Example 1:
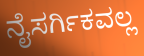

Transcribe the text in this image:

ನೈಸರ್ಗಿಕವಲ್ಲ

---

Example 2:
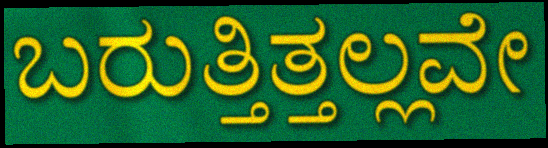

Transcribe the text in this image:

ಬರುತ್ತಿತ್ತಲ್ಲವೇ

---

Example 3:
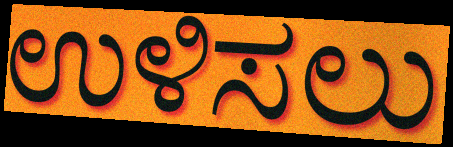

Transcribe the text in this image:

ಉಳಿಸಲು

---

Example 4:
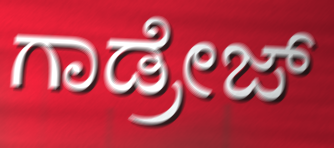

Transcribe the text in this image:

ಗಾಡ್ರೇಜ್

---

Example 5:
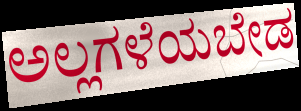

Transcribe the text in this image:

ಅಲ್ಲಗಳೆಯಬೇಡ